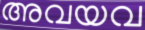
അവയവ